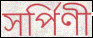
সর্পিণী